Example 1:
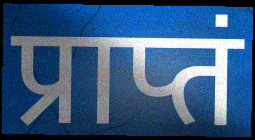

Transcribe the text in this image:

प्राप्तं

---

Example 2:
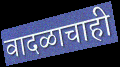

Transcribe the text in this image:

वादळाचाही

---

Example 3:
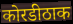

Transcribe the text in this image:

कोरडीठाक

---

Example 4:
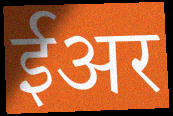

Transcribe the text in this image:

ईअर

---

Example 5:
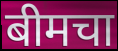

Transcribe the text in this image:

बीमचा